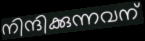
നിന്ദിക്കുന്നവന്